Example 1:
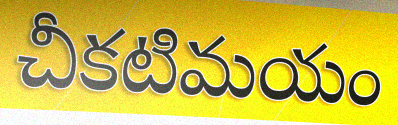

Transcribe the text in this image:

చీకటిమయం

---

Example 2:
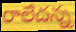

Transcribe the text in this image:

రాలేదన్న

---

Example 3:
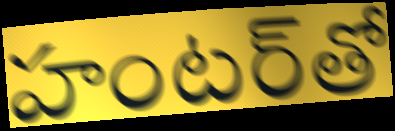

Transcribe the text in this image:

హంటర్‌తో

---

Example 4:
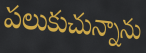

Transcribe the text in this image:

పలుకుచున్నాను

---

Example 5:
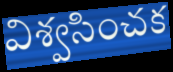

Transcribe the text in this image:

విశ్వసించక